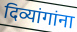
दिव्यांगांना